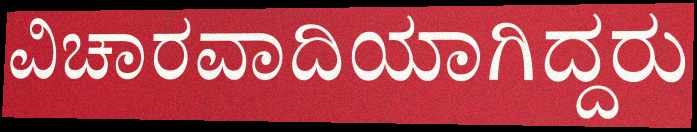
ವಿಚಾರವಾದಿಯಾಗಿದ್ದರು